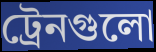
ট্রেনগুলো